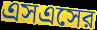
এসএসের